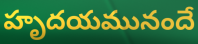
హృదయమునందే